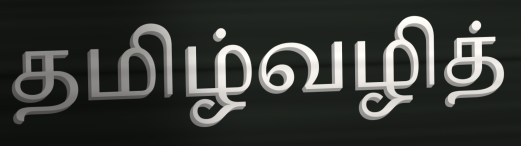
தமிழ்வழித்